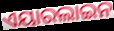
ଏୟାରଲାଇନ